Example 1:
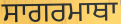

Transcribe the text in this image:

ਸਾਗਰਮਾਥਾ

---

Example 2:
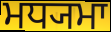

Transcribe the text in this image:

ਮਧ੍ਯਮਾ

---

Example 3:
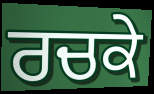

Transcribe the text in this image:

ਰਚਕੇ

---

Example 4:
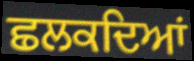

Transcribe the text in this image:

ਛਲਕਦਿਆਂ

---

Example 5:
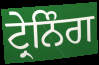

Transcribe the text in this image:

ਟ੍ਰੇਨਿੰਗ